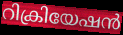
റിക്രിയേഷൻ